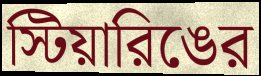
স্টিয়ারিঙের